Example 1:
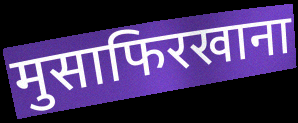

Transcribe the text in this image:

मुसाफिरखाना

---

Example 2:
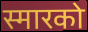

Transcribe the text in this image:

स्मारको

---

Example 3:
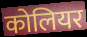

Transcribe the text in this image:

कोलियर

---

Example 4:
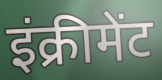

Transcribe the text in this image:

इंक्रीमेंट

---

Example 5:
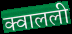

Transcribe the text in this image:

क्वालली